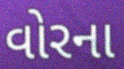
વોરના